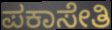
ಪಕಾಸೇತಿ